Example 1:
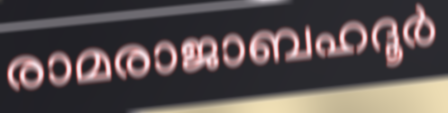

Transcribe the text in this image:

രാമരാജാബഹദൂർ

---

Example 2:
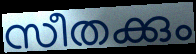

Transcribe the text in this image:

സീതക്കും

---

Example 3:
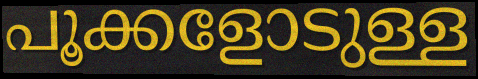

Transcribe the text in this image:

പൂക്കളോടുള്ള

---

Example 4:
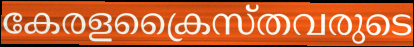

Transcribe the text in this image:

കേരളക്രൈസ്തവരുടെ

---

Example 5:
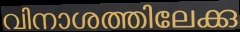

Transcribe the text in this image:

വിനാശത്തിലേക്കു